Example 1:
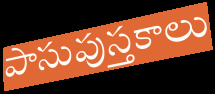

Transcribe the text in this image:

పాసుపుస్తకాలు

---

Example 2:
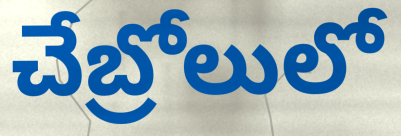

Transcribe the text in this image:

చేబ్రోలులో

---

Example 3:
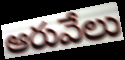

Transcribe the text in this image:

ఆరువేలు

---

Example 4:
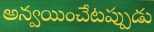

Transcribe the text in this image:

అన్వయించేటప్పుడు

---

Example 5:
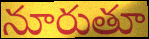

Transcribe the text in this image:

నూరుతూ